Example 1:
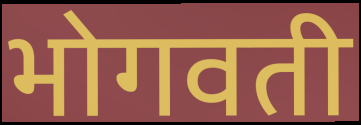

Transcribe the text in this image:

भोगवती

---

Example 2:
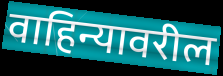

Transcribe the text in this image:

वाहिन्यावरील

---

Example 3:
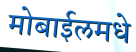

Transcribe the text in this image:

मोबाईलमधे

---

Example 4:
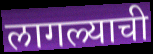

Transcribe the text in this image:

लागल्याची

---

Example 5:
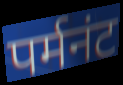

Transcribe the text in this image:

पर्मनंट